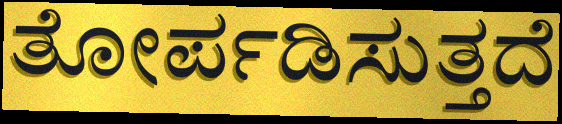
ತೋರ್ಪಡಿಸುತ್ತದೆ